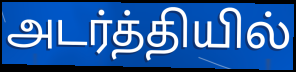
அடர்த்தியில்